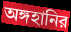
অঙ্গহানির